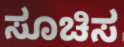
ಸೂಚಿಸ